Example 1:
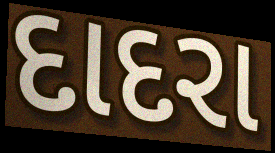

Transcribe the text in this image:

દાદરા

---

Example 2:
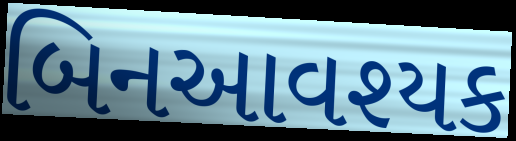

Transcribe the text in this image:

બિનઆવશ્યક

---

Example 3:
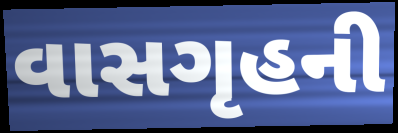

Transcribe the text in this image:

વાસગૃહની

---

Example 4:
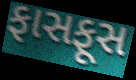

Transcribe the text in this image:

ફાસફૂસ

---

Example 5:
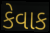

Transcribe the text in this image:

કેવાક